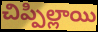
చిప్పిల్లాయి